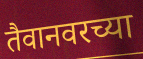
तैवानवरच्या